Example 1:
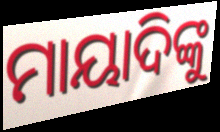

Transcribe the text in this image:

ମାୟାଦିଙ୍କୁ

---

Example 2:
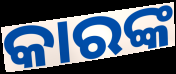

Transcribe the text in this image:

କାରଙ୍କ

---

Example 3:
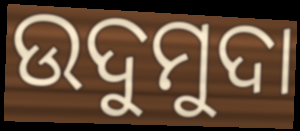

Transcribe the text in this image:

ଉଦୁମୁଦା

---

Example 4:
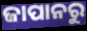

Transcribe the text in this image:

ଜାପାନରୁ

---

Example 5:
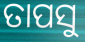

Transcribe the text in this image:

ତାପସୁ